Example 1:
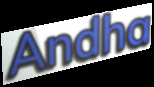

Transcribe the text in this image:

Andha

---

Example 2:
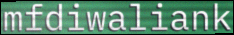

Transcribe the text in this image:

mfdiwaliank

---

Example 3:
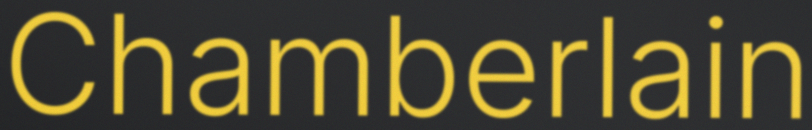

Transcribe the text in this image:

Chamberlain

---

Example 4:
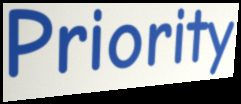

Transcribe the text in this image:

Priority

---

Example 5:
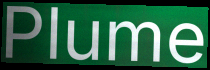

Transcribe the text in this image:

Plume